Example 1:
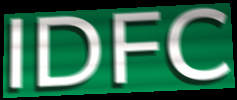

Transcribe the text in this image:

IDFC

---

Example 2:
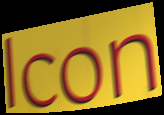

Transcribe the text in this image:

Icon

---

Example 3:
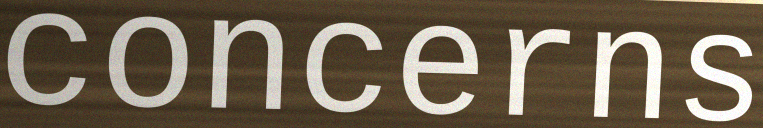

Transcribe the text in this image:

concerns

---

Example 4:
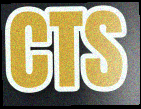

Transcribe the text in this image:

CTS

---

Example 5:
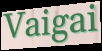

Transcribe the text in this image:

Vaigai